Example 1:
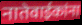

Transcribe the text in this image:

नातेवाईकांना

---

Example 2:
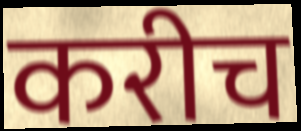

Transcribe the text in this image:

करीच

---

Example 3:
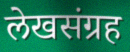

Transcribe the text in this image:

लेखसंग्रह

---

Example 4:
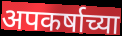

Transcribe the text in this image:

अपकर्षाच्या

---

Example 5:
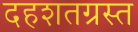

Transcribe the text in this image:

दहशतग्रस्त